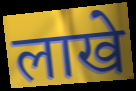
लाखे